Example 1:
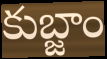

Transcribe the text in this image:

కుబ్జాం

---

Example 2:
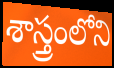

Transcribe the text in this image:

శాస్త్రంలోని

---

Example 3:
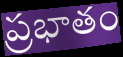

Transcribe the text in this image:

ప్రభాతం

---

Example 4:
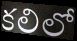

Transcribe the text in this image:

కలిలో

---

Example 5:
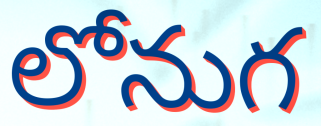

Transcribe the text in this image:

లోనుగ